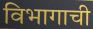
विभागाची